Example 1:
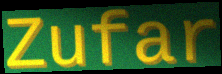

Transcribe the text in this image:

Zufar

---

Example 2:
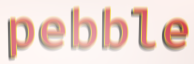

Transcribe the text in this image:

pebble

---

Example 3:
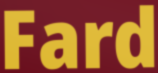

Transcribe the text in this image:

Fard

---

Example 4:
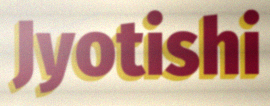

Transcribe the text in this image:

Jyotishi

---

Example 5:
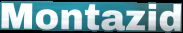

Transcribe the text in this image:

Montazid